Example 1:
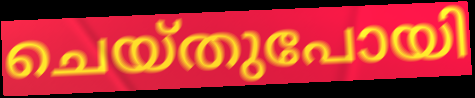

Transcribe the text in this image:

ചെയ്തുപോയി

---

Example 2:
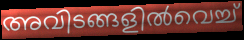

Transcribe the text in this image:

അവിടങ്ങളിൽവെച്ച്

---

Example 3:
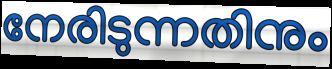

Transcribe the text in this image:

നേരിടുന്നതിനും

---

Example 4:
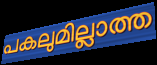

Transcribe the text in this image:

പകലുമില്ലാത്ത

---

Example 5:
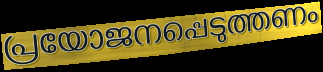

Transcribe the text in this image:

പ്രയോജനപ്പെടുത്തണം